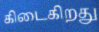
கிடைகிறது